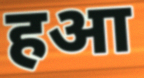
हआ